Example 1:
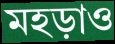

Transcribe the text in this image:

মহড়াও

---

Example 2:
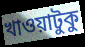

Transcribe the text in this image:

খাওয়াটুকু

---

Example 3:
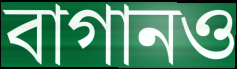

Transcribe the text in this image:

বাগানও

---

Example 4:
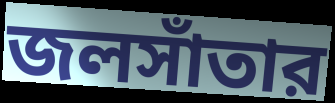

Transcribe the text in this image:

জলসাঁতার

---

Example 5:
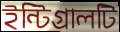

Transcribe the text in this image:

ইন্টিগ্রালটি